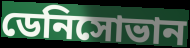
ডেনিসোভান